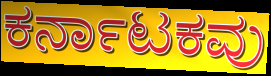
ಕರ್ನಾಟಕವು